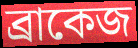
ব্রাকেজ